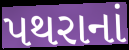
પથરાનાં